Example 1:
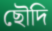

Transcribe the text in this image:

ছৌদি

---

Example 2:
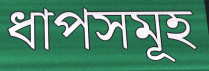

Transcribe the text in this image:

ধাপসমূহ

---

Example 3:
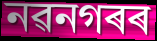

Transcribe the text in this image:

নৱনগৰৰ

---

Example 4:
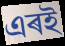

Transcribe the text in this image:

এৰই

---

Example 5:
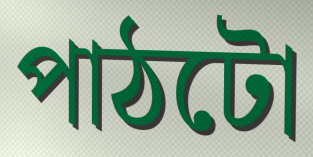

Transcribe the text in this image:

পাঠটো